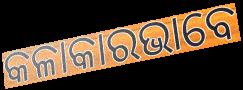
କଳାକାରଭାବେ